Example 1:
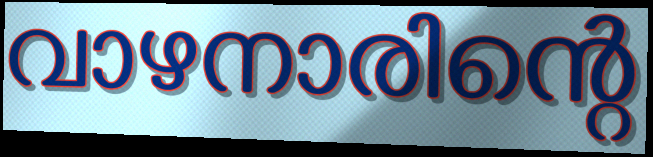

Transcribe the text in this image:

വാഴനാരിന്റെ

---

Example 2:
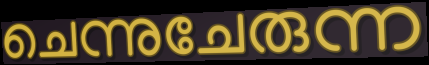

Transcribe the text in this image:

ചെന്നുചേരുന്ന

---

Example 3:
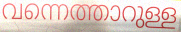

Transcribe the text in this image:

വന്നെത്താറുള്ള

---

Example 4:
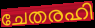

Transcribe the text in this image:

ചേതരഹി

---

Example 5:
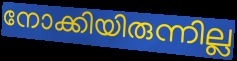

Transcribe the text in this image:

നോക്കിയിരുന്നില്ല